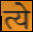
त्ये